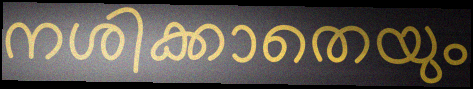
നശിക്കാതെയും